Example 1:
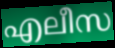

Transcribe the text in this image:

എലീസ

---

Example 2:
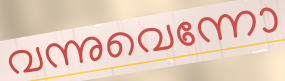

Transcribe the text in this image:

വന്നുവെന്നോ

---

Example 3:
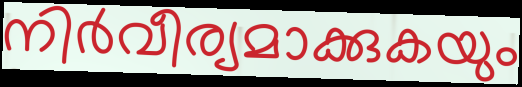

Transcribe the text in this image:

നിർവീര്യമാക്കുകയും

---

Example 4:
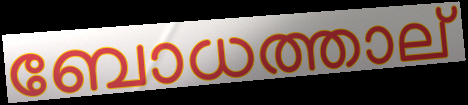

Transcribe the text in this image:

ബോധത്താല്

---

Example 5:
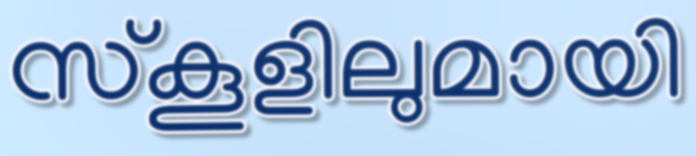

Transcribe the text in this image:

സ്കൂളിലുമായി